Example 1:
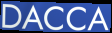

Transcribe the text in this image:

DACCA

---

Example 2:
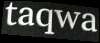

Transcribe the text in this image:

taqwa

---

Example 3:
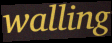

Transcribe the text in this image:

walling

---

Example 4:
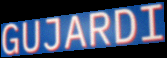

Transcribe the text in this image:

GUJARDI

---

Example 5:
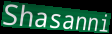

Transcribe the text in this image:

Shasanni